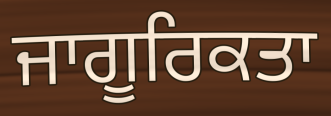
ਜਾਗੂਰਿਕਤਾ